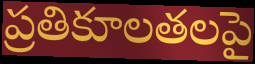
ప్రతికూలతలపై